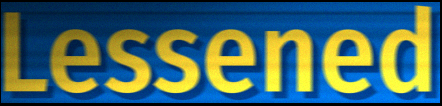
Lessened